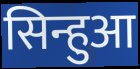
सिन्हुआ